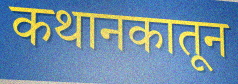
कथानकातून